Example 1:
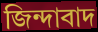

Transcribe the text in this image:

জিন্দাবাদ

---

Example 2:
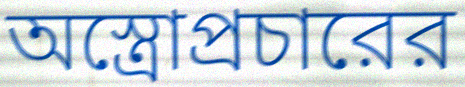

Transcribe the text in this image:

অস্ত্রোপ্রচারের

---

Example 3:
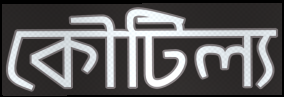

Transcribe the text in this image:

কৌটিল্য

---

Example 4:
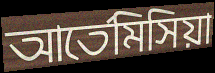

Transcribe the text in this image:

আর্তেমিসিয়া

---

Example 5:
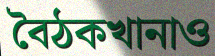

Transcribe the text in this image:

বৈঠকখানাও